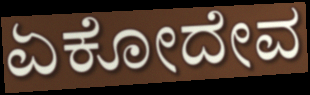
ಏಕೋದೇವ